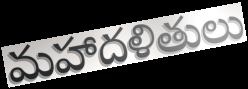
మహాదళితులు